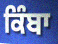
ਕਿੰਬਾ